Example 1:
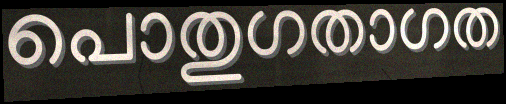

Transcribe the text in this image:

പൊതുഗതാഗത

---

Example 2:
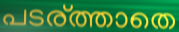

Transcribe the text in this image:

പടര്ത്താതെ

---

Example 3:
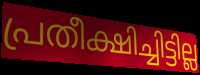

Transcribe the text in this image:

പ്രതീക്ഷിച്ചിട്ടില്ല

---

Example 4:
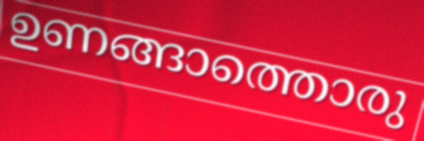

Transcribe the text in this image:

ഉണങ്ങാത്തൊരു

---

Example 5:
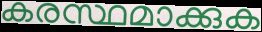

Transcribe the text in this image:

കരസ്ഥമാക്കുക